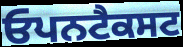
ਓਪਨਟੈਕਸਟ